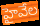
హైవేల